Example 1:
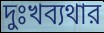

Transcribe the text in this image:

দুঃখব্যথার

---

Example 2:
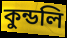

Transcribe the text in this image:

কুন্ডলি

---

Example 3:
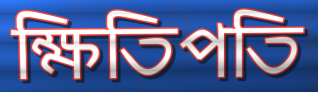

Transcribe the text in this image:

ক্ষিতিপতি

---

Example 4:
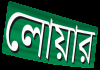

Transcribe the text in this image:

লোয়ার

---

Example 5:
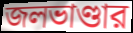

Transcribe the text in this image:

জলভাণ্ডার